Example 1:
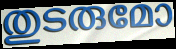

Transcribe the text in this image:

തുടരുമോ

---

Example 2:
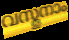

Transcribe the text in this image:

വസ്തൂനാം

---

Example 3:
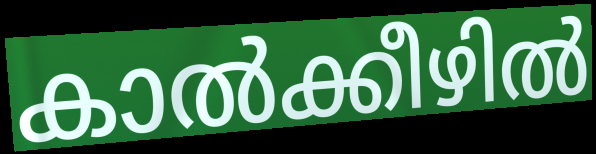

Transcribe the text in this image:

കാൽക്കീഴിൽ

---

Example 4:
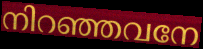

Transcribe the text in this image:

നിറഞ്ഞവനേ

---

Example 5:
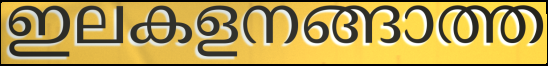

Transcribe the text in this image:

ഇലകളനങ്ങാത്ത